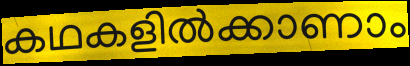
കഥകളിൽക്കാണാം